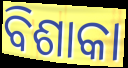
ବିଶାକା